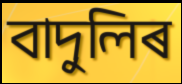
বাদুলিৰ